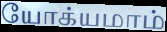
யோக்யமாம்